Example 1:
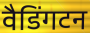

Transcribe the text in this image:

वैडिंगटन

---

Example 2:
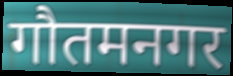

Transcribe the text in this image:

गौतमनगर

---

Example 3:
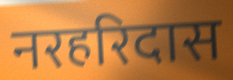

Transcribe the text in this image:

नरहरिदास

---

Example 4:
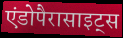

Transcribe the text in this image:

एंडोपैरासाइट्स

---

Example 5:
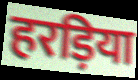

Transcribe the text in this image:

हरड़िया